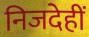
निजदेहीं